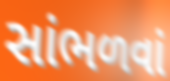
સાંભળવાં